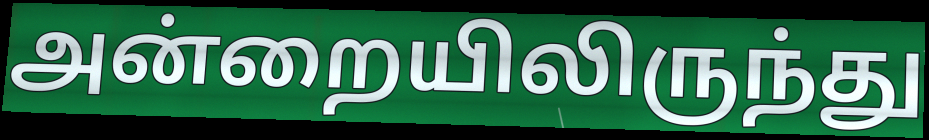
அன்றையிலிருந்து